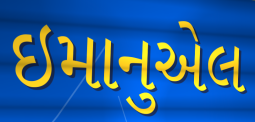
ઇમાનુએલ